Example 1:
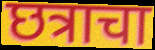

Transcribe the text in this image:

छत्राचा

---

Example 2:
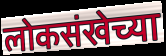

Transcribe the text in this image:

लोकसंखेच्या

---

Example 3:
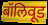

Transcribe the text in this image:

बॉलिवूड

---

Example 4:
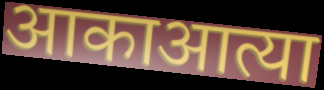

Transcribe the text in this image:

आकाआत्या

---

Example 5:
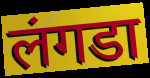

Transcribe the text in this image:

लंगडा